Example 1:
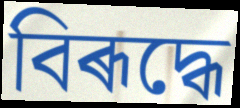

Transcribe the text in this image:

বিৰূদ্ধে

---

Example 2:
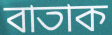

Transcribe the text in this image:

বাতাক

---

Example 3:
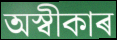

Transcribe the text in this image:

অস্বীকাৰ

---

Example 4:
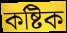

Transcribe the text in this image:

কষ্টিক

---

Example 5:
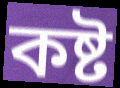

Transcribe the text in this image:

কষ্ট